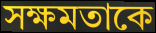
সক্ষমতাকে